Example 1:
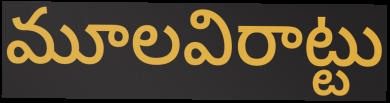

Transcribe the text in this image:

మూలవిరాట్టు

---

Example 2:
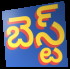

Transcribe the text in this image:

బెస్ట్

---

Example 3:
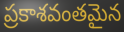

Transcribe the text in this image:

ప్రకాశవంతమైన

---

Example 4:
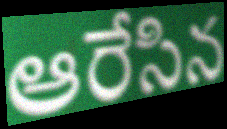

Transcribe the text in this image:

ఆరేసిన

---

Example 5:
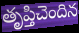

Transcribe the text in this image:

తృప్తిచెందిన